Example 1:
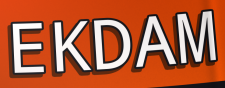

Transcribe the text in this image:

EKDAM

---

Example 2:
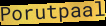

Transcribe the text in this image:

Porutpaal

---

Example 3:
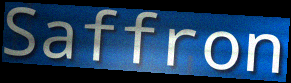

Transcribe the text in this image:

Saffron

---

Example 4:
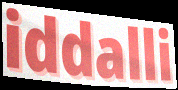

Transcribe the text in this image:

iddalli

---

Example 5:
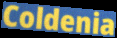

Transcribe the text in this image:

Coldenia